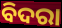
ବିଦରା